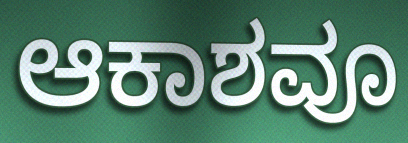
ಆಕಾಶವೂ